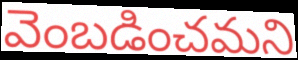
వెంబడించమని